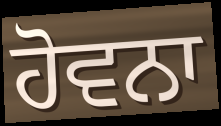
ਹੋਵਨਾ